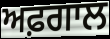
ਅਫ਼ਗਾਲ